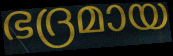
ഭദ്രമായ